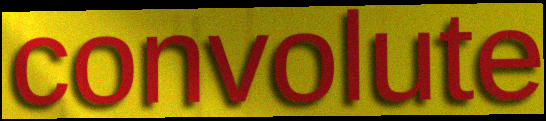
convolute